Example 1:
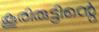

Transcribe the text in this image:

കൂരിരുട്ടിന്റെ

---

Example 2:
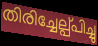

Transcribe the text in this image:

തിരിച്ചേല്പ്പിച്ചു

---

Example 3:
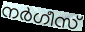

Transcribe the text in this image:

നർഗീസ്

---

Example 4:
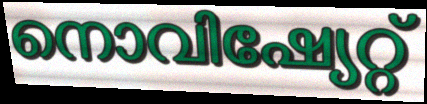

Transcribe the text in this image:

നൊവിഷ്യേറ്റ്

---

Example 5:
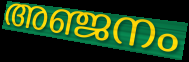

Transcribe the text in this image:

അഞ്ജനം